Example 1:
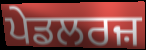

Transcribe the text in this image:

ਪੇਡਲਰਜ਼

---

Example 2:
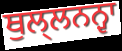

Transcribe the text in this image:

ਥੁਲ੍ਲਨਨ੍ਦਾ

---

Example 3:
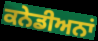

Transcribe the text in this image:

ਕਨੇਡੀਅਨਾਂ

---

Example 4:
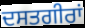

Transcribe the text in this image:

ਦਸਤਗੀਰਾਂ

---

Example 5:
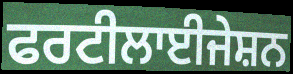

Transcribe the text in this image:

ਫਰਟੀਲਾਈਜੇਸ਼ਨ